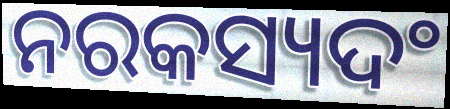
ନରକସ୍ୟଦଂ